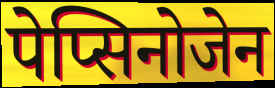
पेप्सिनोजेन